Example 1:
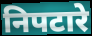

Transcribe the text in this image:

निपटारे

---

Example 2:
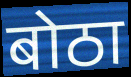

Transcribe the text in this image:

बोठा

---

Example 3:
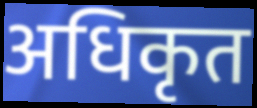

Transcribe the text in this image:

अधिकृत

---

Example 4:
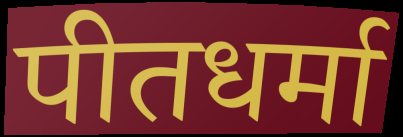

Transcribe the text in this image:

पीतधर्मा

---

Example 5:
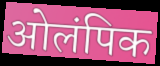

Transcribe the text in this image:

ओलंपिक